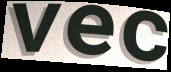
vec